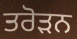
ਤਰੋੜਨ